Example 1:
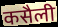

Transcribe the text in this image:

कसैली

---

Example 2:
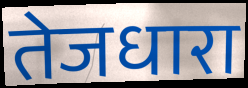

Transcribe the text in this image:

तेजधारा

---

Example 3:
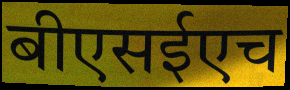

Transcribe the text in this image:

बीएसईएच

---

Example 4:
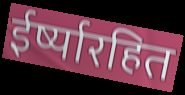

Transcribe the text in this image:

ईर्ष्यारहित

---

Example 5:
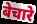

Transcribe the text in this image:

बेचारे